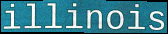
illinois